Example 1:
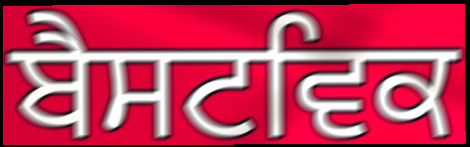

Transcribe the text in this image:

ਬੈਸਟਵਿਕ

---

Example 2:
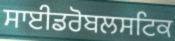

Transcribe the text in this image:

ਸਾਈਡਰੋਬਲਸਟਿਕ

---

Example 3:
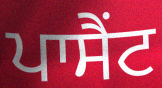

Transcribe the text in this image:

ਪਾਸੈਂਟ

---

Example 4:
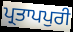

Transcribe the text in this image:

ਪ੍ਰਤਾਪਪੁਰੀ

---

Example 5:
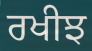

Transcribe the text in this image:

ਰਖੀਝ